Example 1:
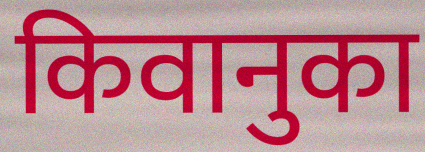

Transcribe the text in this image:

किवानुका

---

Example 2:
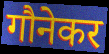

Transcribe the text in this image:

गौनेकर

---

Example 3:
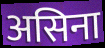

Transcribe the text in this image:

असिना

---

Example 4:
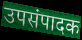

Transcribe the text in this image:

उपसंपादक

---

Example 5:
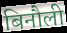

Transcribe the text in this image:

बिनौली